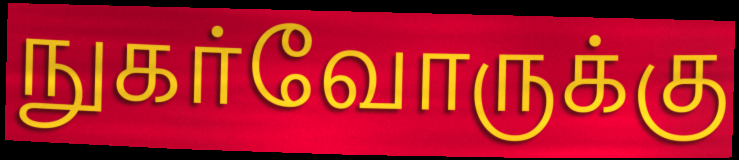
நுகர்வோருக்கு